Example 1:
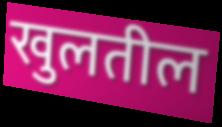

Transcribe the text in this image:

खुलतील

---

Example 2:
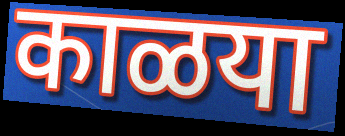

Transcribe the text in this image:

काळया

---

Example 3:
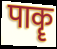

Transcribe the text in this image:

पाकॄ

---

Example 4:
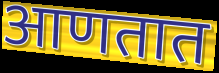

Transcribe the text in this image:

आणतात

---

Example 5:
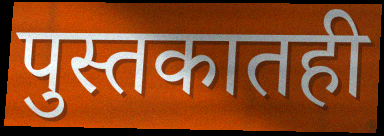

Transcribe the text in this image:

पुस्तकातही